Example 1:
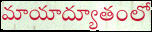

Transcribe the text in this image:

మాయాద్యూతంలో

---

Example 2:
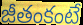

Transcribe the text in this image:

జీతంకంటే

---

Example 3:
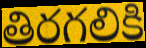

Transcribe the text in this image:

తిరగలికి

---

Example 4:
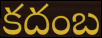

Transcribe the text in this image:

కదంబ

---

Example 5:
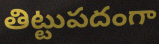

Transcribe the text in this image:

తిట్టుపదంగా